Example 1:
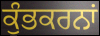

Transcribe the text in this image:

ਕੁੰਭਕਰਨਾਂ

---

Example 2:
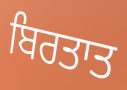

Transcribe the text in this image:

ਬਿਰਤਾਤ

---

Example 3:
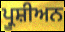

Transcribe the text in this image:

ਪ੍ਰੂਸ਼ੀਅਨ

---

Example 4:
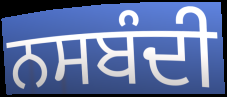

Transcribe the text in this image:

ਨਸਬੰਦੀ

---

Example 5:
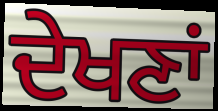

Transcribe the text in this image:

ਦੇਖਣਾਂ